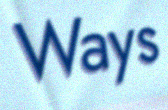
Ways